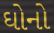
ઘોનો